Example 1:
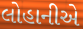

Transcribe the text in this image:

લોહાનીએ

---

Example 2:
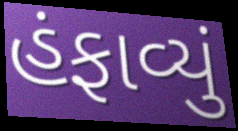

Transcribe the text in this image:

હંફાવ્યું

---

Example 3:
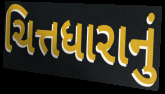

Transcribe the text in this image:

ચિત્તધારાનું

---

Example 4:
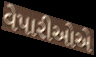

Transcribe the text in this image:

વેપારીઓએ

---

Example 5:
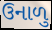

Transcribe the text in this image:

ઉનાળુ